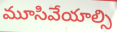
మూసివేయాల్సి